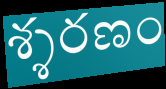
శ్శరణం